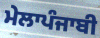
ਮੇਲਾਪੰਜਾਬੀ